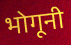
भोगूनी